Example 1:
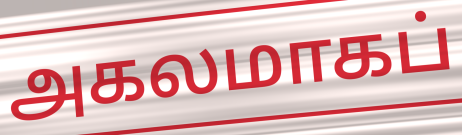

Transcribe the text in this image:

அகலமாகப்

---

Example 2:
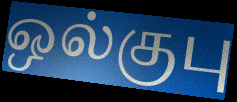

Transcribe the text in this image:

ஒல்குபு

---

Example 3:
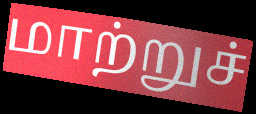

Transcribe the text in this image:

மாற்றுச்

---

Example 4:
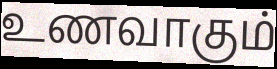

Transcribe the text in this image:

உணவாகும்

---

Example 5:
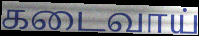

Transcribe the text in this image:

கடைவாய்